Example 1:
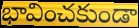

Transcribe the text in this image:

భావించకుండా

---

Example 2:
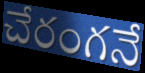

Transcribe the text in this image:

చేరంగనే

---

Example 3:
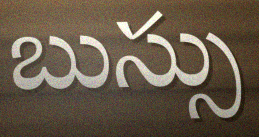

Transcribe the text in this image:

బుస్సు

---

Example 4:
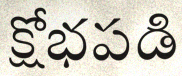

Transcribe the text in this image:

క్షోభపడి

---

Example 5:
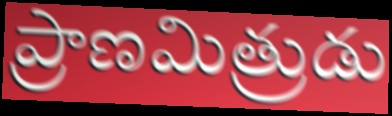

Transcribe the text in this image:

ప్రాణమిత్రుడు